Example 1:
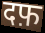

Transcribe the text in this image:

दफ़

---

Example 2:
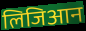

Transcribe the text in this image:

लिजिआन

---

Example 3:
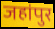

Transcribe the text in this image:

जहांपुर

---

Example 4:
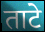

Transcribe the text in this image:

ताटे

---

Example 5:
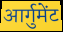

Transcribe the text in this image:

आर्गुमेंट